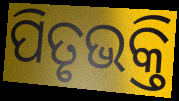
ପିତୃଭକ୍ତି